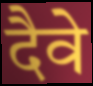
दैवे